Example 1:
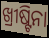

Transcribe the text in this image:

ଖ୍ରୀଷ୍ଟିନା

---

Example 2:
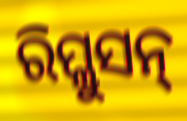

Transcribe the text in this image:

ରିପ୍ଲୁସନ୍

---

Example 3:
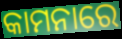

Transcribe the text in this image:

କାମନାରେ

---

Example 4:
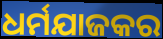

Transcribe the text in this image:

ଧର୍ମଯାଜକର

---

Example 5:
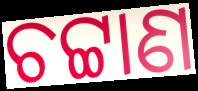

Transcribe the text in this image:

ଚଟ୍ଟାଣ